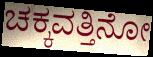
ಚಕ್ಕವತ್ತಿನೋ